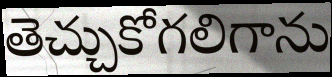
తెచ్చుకోగలిగాను